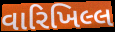
વારિખિલ્લ